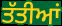
ਤੱਤੀਆਂ